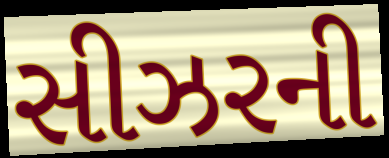
સીઝરની